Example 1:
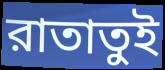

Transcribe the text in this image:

রাতাতুই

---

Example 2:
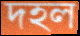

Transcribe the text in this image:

দহল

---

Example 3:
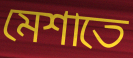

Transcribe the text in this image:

মেশাতে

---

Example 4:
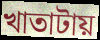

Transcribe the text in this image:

খাতাটায়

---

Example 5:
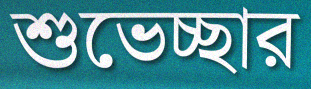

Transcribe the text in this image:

শুভেচ্ছার